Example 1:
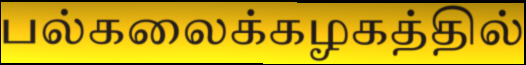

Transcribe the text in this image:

பல்கலைக்கழகத்தில்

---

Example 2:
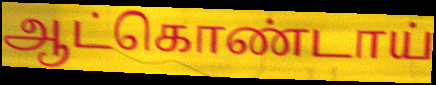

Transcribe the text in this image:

ஆட்கொண்டாய்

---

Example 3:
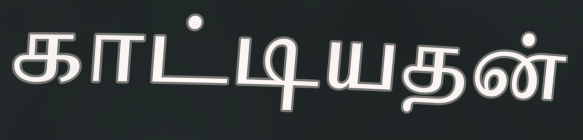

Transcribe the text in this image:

காட்டியதன்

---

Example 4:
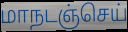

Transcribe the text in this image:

மாநடஞ்செய்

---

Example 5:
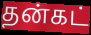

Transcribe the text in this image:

தன்கட்